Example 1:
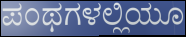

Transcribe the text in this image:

ಪಂಥಗಳಲ್ಲಿಯೂ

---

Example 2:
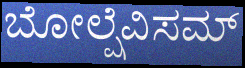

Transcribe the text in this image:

ಬೋಲ್ಷೆವಿಸಮ್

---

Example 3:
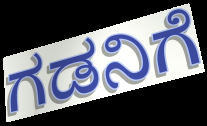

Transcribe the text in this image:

ಗಡನಿಗೆ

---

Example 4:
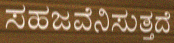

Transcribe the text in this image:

ಸಹಜವೆನಿಸುತ್ತದೆ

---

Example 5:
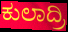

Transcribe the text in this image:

ಕುಲಾದ್ರಿ